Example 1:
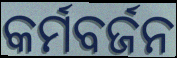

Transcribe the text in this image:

କର୍ମବର୍ଜନ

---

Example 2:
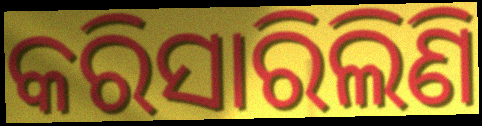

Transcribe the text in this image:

କରିସାରିଲିଣି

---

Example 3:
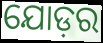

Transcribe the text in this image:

ଯୋଡ଼ର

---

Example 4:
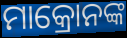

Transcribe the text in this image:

ମାକ୍ରୋନଙ୍କ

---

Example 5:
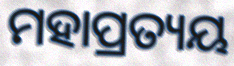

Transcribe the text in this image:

ମହାପ୍ରତ୍ୟୟ